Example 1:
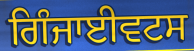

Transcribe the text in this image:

ਗਿੰਜਾਈਵਟਸ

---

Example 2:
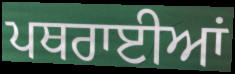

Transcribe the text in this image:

ਪਥਰਾਈਆਂ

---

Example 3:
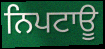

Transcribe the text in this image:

ਨਿਪਟਾਊ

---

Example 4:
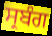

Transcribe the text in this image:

ਸ੍ਰਬੰਗ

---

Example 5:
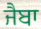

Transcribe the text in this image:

ਜੈਬਾ